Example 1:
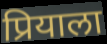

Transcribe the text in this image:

प्रियाला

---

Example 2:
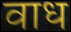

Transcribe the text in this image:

वाध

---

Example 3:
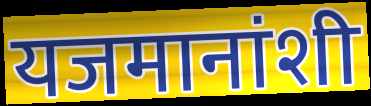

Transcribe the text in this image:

यजमानांशी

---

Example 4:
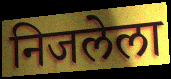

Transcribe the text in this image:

निजलेला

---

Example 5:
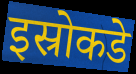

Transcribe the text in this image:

इस्रोकडे